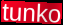
tunko